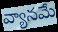
వ్యానమే